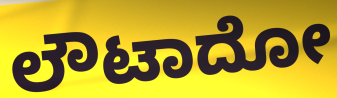
ಲೌಟಾದೋ